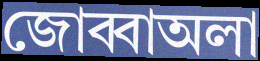
জোব্বাঅলা